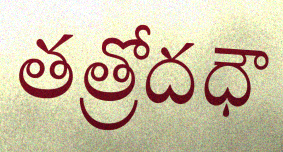
తత్రోదధౌ